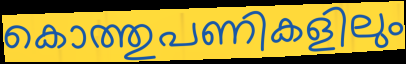
കൊത്തുപണികളിലും